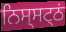
ਨਿਸ੍ਸਟ੍ਠਂ